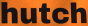
hutch